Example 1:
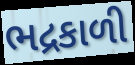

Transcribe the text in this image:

ભદ્રકાળી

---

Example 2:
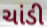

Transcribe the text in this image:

ચાંડી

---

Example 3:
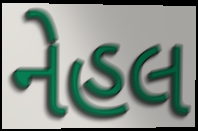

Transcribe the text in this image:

નેહલ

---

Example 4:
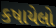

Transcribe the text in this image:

કષાયેલો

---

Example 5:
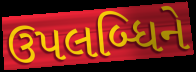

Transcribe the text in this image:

ઉપલબ્ધિને